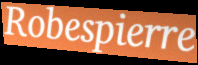
Robespierre